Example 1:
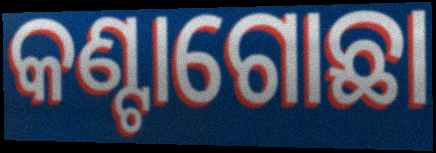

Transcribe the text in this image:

କଣ୍ଟାଗୋଛା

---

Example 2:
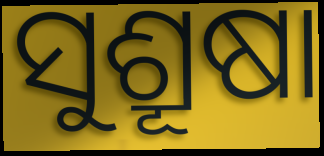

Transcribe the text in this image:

ସୁଶ୍ରୂଷା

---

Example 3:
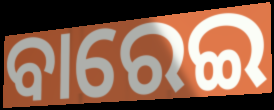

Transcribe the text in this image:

ବାରେଇ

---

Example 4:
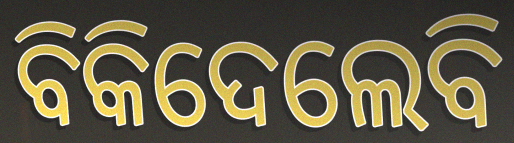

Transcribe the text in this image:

ବିକିଦେଲେବି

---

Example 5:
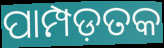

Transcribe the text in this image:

ପାମ୍ପଡ଼ତକ